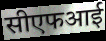
सीएफआई